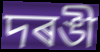
দৰঙী